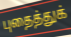
புதைத்துக்